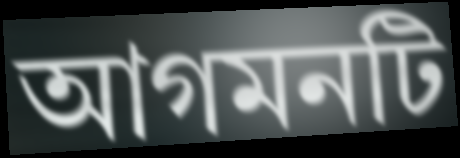
আগমনটি